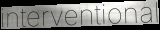
interventional